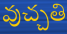
వుచ్చతి